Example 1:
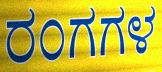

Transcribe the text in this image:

ರಂಗಗಳ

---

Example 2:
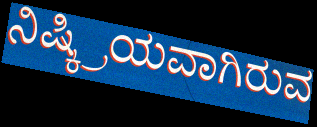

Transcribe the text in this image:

ನಿಷ್ಕ್ರಿಯವಾಗಿರುವ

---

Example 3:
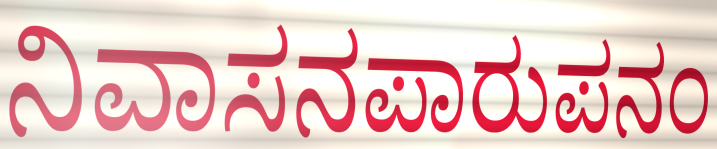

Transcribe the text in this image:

ನಿವಾಸನಪಾರುಪನಂ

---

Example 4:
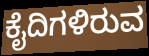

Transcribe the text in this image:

ಕೈದಿಗಳಿರುವ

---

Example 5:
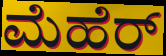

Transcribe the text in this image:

ಮೆಹೆರ್